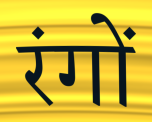
रंगों